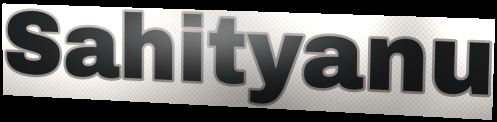
Sahityanu